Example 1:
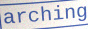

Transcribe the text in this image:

arching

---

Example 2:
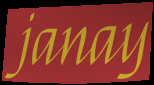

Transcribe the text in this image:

janay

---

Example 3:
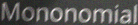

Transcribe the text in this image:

Mononomial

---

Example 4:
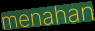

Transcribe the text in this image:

menahan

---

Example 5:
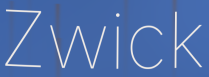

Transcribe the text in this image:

Zwick